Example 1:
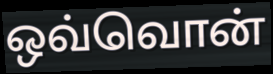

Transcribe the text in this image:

ஒவ்வொன்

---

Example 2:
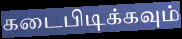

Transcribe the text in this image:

கடைபிடிக்கவும்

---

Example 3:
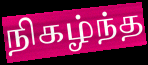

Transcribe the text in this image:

நிகழ்ந்த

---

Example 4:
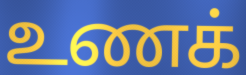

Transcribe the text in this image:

உணக்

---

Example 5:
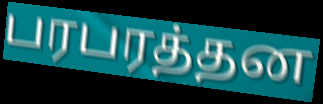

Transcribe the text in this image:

பரபரத்தன